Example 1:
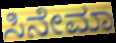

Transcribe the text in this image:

ಸಿನೇಮಾ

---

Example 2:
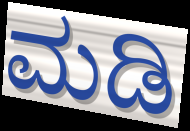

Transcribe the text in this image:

ಮಡಿ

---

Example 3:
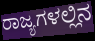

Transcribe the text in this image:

ರಾಜ್ಯಗಳಲ್ಲಿನ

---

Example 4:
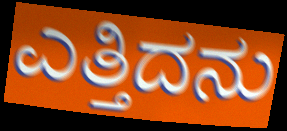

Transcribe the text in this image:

ಎತ್ತಿದನು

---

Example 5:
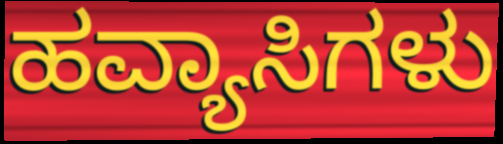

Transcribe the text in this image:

ಹವ್ಯಾಸಿಗಳು